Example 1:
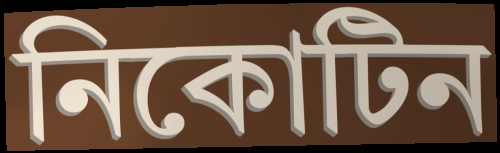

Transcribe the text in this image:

নিকোটিন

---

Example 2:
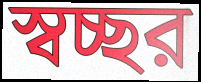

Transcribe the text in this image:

স্বচ্ছর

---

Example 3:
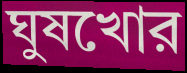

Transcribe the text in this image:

ঘুষখোর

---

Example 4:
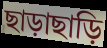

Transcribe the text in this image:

ছাড়াছাড়ি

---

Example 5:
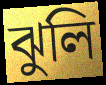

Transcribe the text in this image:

ঝুলি